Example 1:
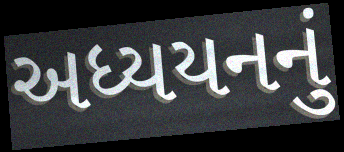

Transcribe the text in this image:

અધ્યયનનું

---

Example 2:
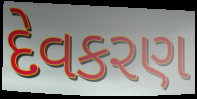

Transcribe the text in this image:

દેવકરણ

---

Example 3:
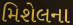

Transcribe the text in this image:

મિશેલના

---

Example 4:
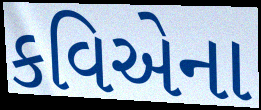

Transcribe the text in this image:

કવિએના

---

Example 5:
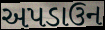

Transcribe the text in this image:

અપડાઉન